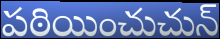
పఠియించుచున్